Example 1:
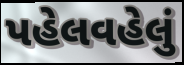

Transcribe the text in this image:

પહેલવહેલું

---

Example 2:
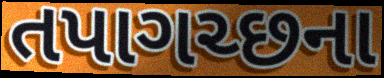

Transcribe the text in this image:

તપાગચ્છના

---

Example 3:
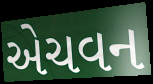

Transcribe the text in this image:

એચવન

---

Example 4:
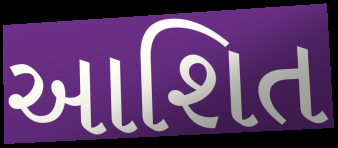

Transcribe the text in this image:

આશિત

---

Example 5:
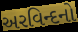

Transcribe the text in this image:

અરવિન્દનો